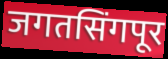
जगतसिंगपूर